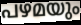
പഴമയും